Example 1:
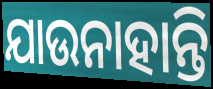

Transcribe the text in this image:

ଯାଉନାହାନ୍ତି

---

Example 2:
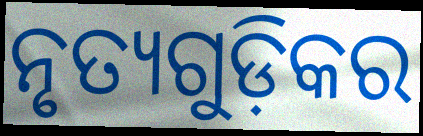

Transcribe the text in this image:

ନୃତ୍ୟଗୁଡ଼ିକର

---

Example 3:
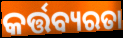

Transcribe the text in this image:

କର୍ତ୍ତବ୍ୟରତା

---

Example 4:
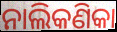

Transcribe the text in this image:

ନାଲିକଣିକା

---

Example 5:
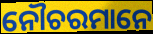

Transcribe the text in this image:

ନୌଚରମାନେ